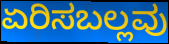
ಏರಿಸಬಲ್ಲವು